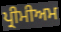
ਪ੍ਰੀਮੀਅਮ